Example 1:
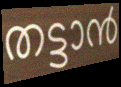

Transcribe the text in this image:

തട്ടാൻ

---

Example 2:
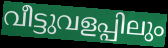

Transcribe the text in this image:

വീട്ടുവളപ്പിലും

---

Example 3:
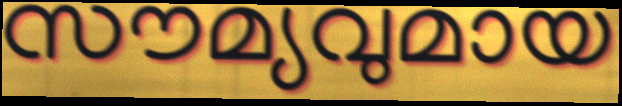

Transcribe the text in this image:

സൗമ്യവുമായ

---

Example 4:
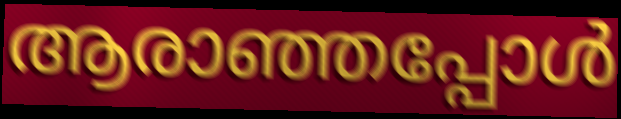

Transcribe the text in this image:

ആരാഞ്ഞപ്പോൾ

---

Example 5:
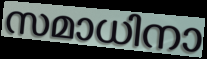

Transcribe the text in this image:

സമാധിനാ